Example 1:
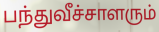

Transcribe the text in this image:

பந்துவீச்சாளரும்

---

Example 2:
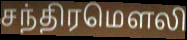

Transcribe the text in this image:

சந்திரமௌலி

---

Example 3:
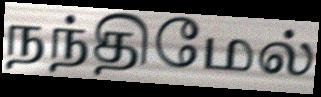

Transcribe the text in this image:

நந்திமேல்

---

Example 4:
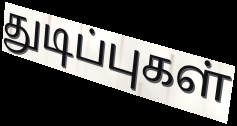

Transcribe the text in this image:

துடிப்புகள்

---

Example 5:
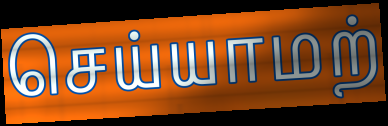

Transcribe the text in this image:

செய்யாமற்